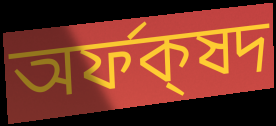
অর্ফক্‌ষদ